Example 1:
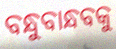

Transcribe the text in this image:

ବନ୍ଧୁବାନ୍ଧବକୁ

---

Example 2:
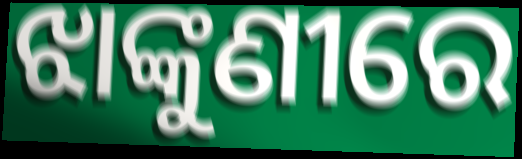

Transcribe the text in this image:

ଝାଙ୍କୁଣୀରେ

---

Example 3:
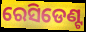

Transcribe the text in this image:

ରେସିଡେଣ୍ଟ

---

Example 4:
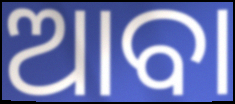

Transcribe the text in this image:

ଆବା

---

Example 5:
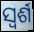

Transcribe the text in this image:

ସ୍ୱର୍ଶ